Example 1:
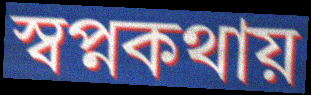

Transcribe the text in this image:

স্বপ্নকথায়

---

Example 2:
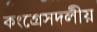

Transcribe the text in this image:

কংগ্রেসদলীয়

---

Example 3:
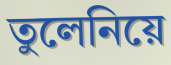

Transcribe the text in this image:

তুলেনিয়ে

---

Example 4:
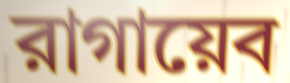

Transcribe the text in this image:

রাগায়েব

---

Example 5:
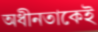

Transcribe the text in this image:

অধীনতাকেই